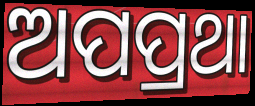
ଅପପ୍ରଥା